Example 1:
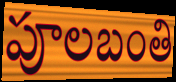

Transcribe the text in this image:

పూలబంతి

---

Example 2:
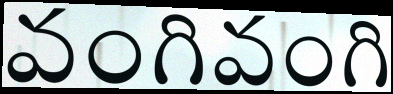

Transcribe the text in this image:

వంగివంగి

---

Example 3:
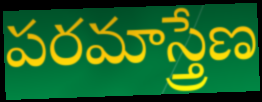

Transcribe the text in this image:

పరమాస్త్రేణ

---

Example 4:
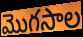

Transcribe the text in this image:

మొగసాల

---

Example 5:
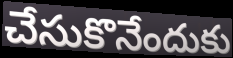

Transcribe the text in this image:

చేసుకొనేందుకు